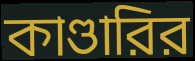
কাণ্ডারির